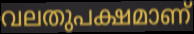
വലതുപക്ഷമാണ്